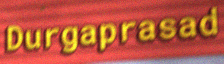
Durgaprasad